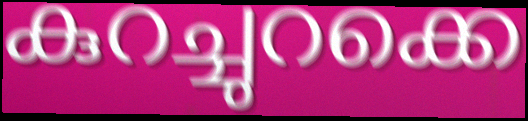
കുറച്ചുറക്കെ